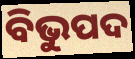
ବିଭୁପଦ